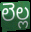
లెల్ల